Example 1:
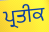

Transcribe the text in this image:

ਪ੍ਰਤੀਕ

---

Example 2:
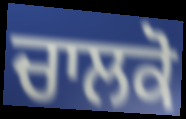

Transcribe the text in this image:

ਚਾਲਕੋ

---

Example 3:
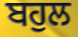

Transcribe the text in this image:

ਬਹੁਲ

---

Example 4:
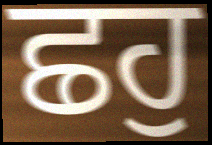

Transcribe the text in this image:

ਛਹੁ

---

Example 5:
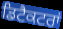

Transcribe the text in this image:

ਡਿਟੈਕਟਰਾਂ